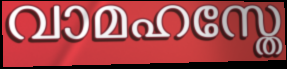
വാമഹസ്തേ